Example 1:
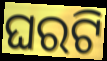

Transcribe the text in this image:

ଘରଟି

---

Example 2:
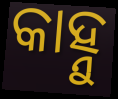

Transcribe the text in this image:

କାହ୍ନୁ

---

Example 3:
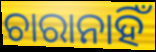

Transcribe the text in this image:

ଚାରାନାହିଁ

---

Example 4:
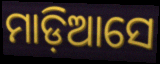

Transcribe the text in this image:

ମାଡ଼ିଆସେ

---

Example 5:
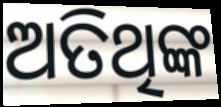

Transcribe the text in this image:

ଅତିଥିଙ୍କ